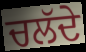
ਚਲੱਦੇ